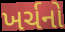
ખર્ચનો